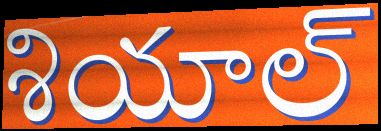
శియాల్